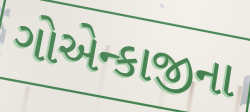
ગોએન્કાજીના